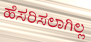
ಹೆಸರಿಸಲಾಗಿಲ್ಲ